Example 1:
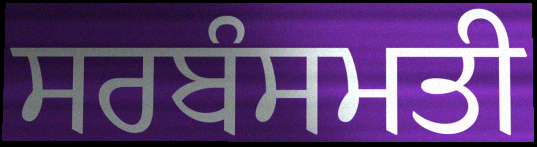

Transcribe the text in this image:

ਸਰਬੰਸਮਤੀ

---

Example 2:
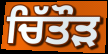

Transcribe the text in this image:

ਚਿੱਤੌੜ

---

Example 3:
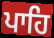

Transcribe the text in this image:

ਪਾਹਿ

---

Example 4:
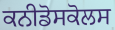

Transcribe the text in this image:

ਕਨੀਡੋਸਕੋਲਸ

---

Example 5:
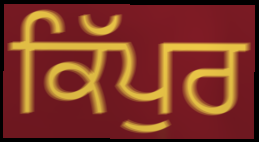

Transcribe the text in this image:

ਕਿੱਪੁਰ